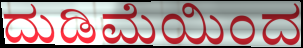
ದುಡಿಮೆಯಿಂದ